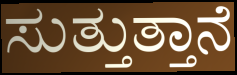
ಸುತ್ತುತ್ತಾನೆ